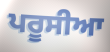
ਪਰੂਸੀਆ